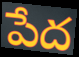
పేద